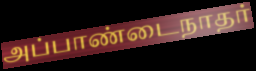
அப்பாண்டைநாதர்